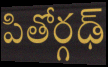
పితోర్గఢ్